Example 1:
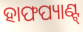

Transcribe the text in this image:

ହାଫପ୍ୟାଣ୍ଟ୍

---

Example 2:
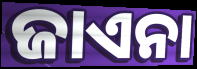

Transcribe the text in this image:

ଜାଏନା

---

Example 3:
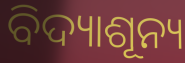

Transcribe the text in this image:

ବିଦ୍ୟାଶୂନ୍ୟ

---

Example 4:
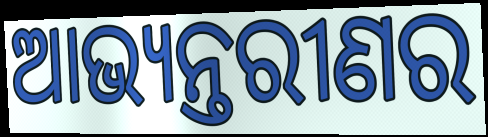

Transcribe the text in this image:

ଆଭ୍ୟନ୍ତରୀଣର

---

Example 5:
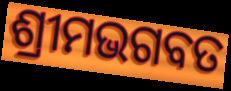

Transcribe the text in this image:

ଶ୍ରୀମଭଗବତ